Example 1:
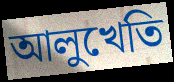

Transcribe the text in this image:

আলুখেতি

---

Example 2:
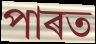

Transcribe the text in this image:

পাৰত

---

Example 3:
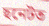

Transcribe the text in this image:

ছনেটত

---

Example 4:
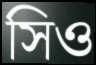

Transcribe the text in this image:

সিও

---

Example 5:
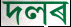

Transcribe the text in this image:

দলৰ